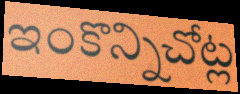
ఇంకొన్నిచోట్ల